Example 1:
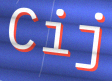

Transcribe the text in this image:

Cij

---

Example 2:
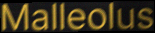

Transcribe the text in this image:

Malleolus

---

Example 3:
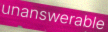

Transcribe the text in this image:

unanswerable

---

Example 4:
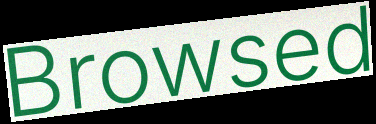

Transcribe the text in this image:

Browsed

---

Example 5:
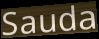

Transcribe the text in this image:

Sauda